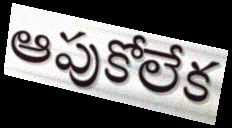
ఆపుకోలేక